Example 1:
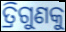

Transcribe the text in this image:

ତ୍ରିଗୁଣକୁ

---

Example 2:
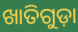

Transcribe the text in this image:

ଖାତିଗୁଡ଼ା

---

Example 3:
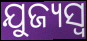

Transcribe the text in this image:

ଯୁଜ୍ୟସ୍ୱ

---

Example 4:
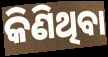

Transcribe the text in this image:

କିଣିଥିବା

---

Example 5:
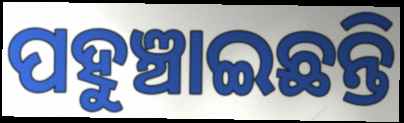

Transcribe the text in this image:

ପହୁଞ୍ଚାଇଛନ୍ତି